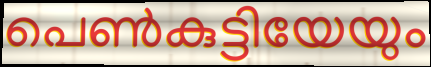
പെൺകുട്ടിയേയും